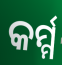
କର୍ମ୍ମ